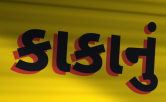
કાકાનું